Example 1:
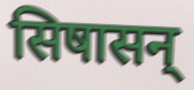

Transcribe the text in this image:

सिषासन्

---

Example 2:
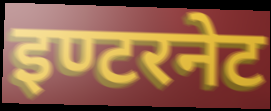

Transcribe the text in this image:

इण्टरनेट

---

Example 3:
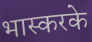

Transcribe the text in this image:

भास्करके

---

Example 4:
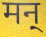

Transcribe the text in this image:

मन्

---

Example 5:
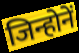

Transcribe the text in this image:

जिन्होनें